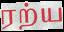
ரற்ய